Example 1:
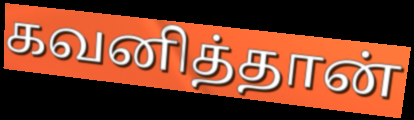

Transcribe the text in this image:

கவனித்தான்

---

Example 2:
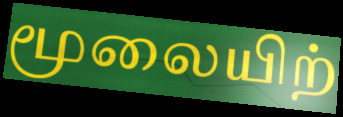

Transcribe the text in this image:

மூலையிற்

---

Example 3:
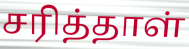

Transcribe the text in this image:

சரித்தாள்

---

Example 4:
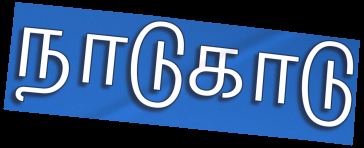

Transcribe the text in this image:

நாடுகாடு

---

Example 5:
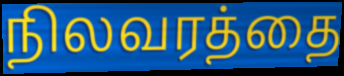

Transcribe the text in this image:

நிலவரத்தை